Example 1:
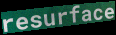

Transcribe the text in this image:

resurface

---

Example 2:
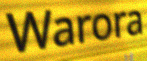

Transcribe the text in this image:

Warora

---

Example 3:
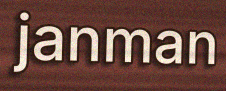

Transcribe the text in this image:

janman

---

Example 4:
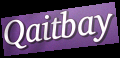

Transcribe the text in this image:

Qaitbay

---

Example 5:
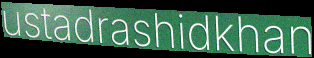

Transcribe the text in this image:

ustadrashidkhan